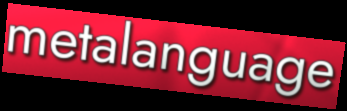
metalanguage